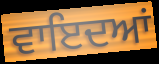
ਵਾਇਦਆਂ